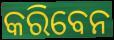
କରିବେନ